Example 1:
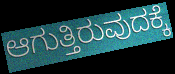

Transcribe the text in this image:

ಆಗುತ್ತಿರುವುದಕ್ಕೆ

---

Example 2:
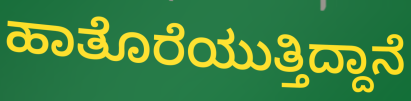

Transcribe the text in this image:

ಹಾತೊರೆಯುತ್ತಿದ್ದಾನೆ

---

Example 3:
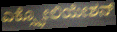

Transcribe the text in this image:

ಎಕ್ಸ್ಫೋಲಿಯೇಶನ್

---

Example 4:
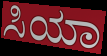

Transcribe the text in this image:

ಸಿಯಾ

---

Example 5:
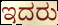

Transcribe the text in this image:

ಇದರು